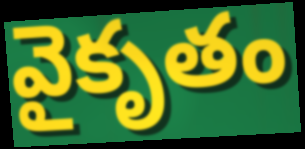
వైకృతం